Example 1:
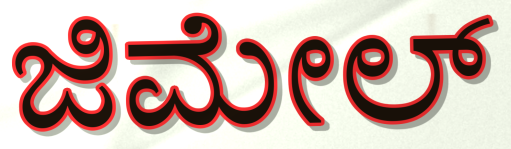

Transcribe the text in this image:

ಜಿಮೇಲ್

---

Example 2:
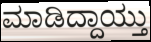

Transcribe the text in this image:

ಮಾಡಿದ್ದಾಯ್ತು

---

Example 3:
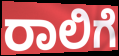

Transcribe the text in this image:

ರಾಲಿಗೆ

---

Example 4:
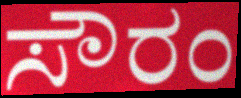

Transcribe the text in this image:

ಸೌರಂ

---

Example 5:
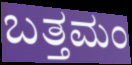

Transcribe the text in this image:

ಬತ್ತಮಂ